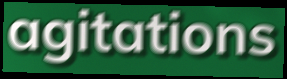
agitations